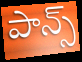
పాన్స్